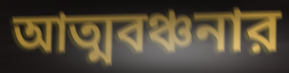
আত্মবঞ্চনার